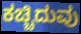
ಕಚ್ಚಿದುವು